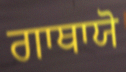
ਗਾਥਾਯੋ